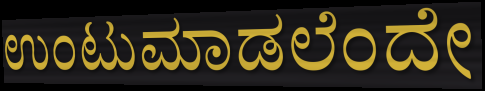
ಉಂಟುಮಾಡಲೆಂದೇ